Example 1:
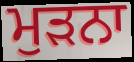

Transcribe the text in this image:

ਮੁੜਨਾ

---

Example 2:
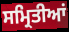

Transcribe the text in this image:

ਸਮ੍ਰਿਤੀਆਂ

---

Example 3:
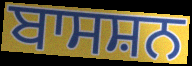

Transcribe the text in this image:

ਬਾਸਸ਼ਨ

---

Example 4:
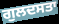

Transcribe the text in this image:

ਗੁਲਦਸਤਾ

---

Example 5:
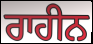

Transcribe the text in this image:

ਰਾਹੀਨ